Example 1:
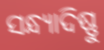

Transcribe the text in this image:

ସନ୍ଧ୍ୟାଦିଷ୍ଣୁ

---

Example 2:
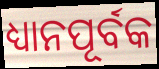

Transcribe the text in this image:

ଧ୍ୟାନପୂର୍ବକ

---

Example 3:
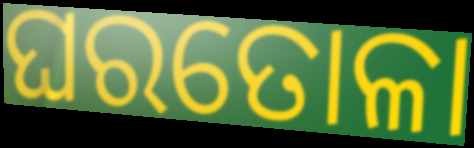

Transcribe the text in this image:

ଘରତୋଳା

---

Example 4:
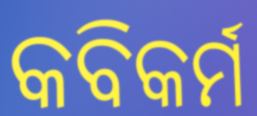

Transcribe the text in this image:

କବିକର୍ମ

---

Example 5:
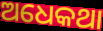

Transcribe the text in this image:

ଅଧେକଥା